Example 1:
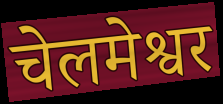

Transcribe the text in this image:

चेलमेश्वर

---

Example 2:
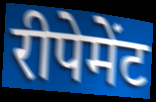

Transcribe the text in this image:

रीपेमेंट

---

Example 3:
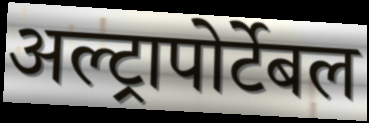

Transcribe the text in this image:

अल्ट्रापोर्टेबल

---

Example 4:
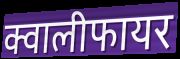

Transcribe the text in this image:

क्वालीफायर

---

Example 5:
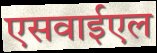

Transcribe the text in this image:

एसवाईएल